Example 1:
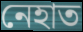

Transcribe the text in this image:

নেহাত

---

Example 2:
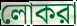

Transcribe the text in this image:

লোকরা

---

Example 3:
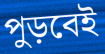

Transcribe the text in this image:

পুড়বেই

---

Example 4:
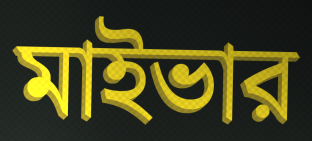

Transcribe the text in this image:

মাইভার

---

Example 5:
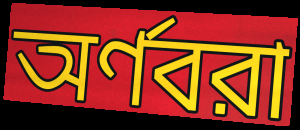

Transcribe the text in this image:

অর্ণবরা